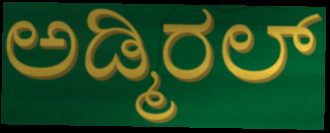
ಅಡ್ಮಿರಲ್